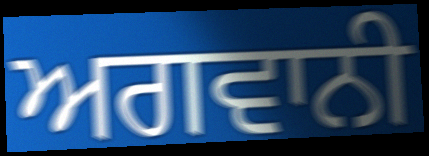
ਅਗਵਾਨੀ